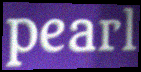
pearl